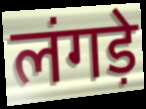
लंगड़े